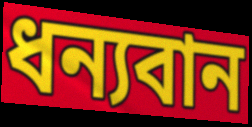
ধন্যবান